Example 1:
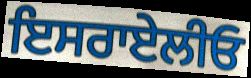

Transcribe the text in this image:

ਇਸਰਾਏਲੀਓ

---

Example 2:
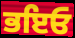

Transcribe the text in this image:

ਭਇਓ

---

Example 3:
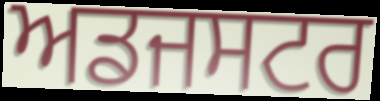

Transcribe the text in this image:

ਅਡਜਸਟਰ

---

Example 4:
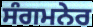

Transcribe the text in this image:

ਸੰਗਮਨੇਰ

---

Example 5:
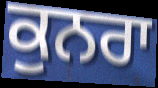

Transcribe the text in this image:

ਕੁਨਰਾ